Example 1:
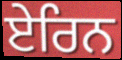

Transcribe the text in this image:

ਏਰਿਨ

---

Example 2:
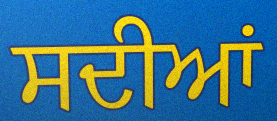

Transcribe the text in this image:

ਸਦੀਆਂ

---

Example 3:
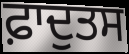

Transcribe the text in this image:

ਫ਼ਾਦੁਤਸ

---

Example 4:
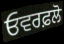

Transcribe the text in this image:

ਓਵਰਫ਼ਲੋ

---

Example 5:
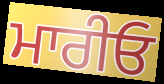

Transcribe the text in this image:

ਮਾਰੀਓ